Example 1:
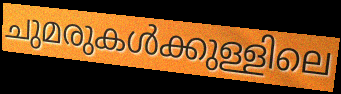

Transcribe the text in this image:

ചുമരുകൾക്കുള്ളിലെ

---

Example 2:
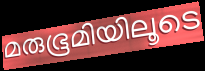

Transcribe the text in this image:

മരുഭൂമിയിലൂടെ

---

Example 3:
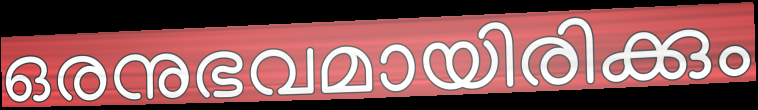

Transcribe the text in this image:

ഒരനുഭവമായിരിക്കും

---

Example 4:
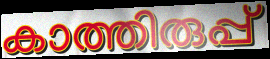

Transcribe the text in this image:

കാത്തിരുപ്പ്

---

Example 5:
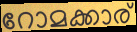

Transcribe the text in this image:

റോമക്കാര്